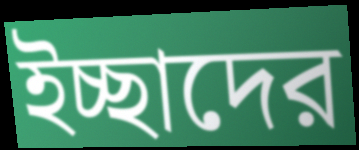
ইচ্ছাদের